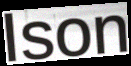
Ison